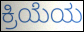
ಕ್ರಿಯೆಯ